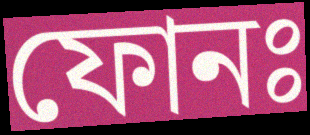
ফোনঃ